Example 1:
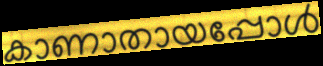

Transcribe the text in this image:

കാണാതായപ്പോൾ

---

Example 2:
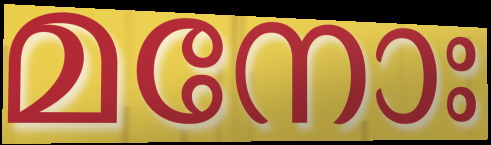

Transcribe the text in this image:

മനോഃ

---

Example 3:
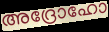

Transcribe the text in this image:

അദ്രോഹോ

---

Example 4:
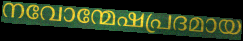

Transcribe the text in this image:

നവോന്മേഷപ്രദമായ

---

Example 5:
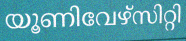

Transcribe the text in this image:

യൂണിവേഴ്സിറ്റി